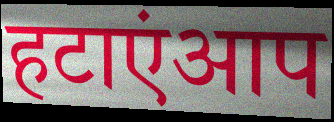
हटाएंआप